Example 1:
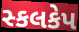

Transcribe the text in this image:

સ્કલકેપ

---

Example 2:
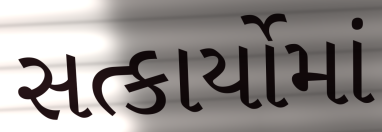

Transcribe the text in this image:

સત્કાર્યોમાં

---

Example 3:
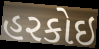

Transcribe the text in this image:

હરકોઇ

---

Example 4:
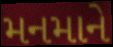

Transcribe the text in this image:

મનમાને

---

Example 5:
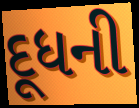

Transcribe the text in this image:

દૂધની